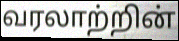
வரலாற்றின்